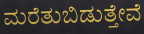
ಮರೆತುಬಿಡುತ್ತೇವೆ